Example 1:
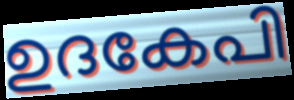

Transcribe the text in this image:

ഉദകേപി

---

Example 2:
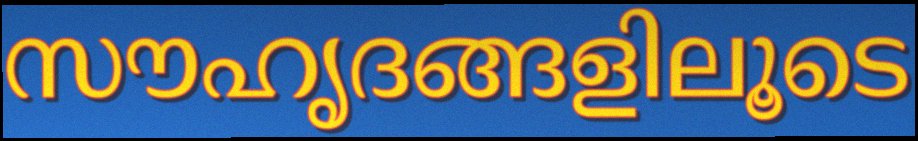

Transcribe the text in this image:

സൗഹൃദങ്ങളിലൂടെ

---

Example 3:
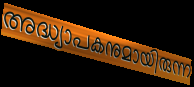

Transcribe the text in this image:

അദ്ധ്യാപകനുമായിരുന്ന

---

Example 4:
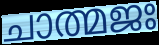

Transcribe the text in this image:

ചാത്മജഃ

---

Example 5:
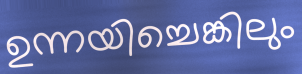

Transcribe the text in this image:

ഉന്നയിച്ചെങ്കിലും